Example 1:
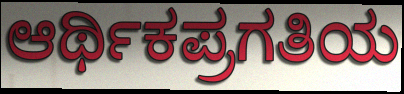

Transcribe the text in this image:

ಆರ್ಥಿಕಪ್ರಗತಿಯ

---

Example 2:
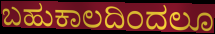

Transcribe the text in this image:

ಬಹುಕಾಲದಿಂದಲೂ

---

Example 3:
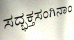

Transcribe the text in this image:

ಸದ್ಭಕ್ತಸಂಗಿನಾಂ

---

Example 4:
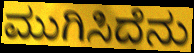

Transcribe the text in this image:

ಮುಗಿಸಿದೆನು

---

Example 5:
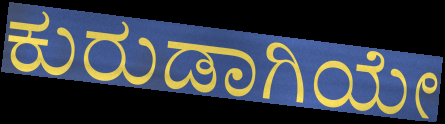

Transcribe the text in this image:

ಕುರುಡಾಗಿಯೇ